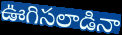
ఊగిసలాడినా